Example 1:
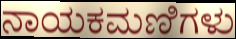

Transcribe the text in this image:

ನಾಯಕಮಣಿಗಳು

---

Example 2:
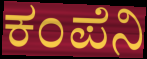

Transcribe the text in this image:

ಕಂಪೆನಿ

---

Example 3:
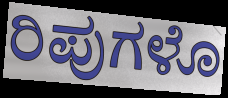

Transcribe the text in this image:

ರಿಪುಗಳೊ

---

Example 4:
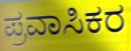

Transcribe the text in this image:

ಪ್ರವಾಸಿಕರ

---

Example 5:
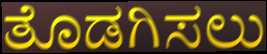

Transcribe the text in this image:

ತೊಡಗಿಸಲು